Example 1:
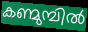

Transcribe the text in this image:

കണ്മുമ്പിൽ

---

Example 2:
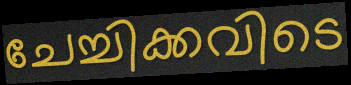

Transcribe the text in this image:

ചേച്ചിക്കവിടെ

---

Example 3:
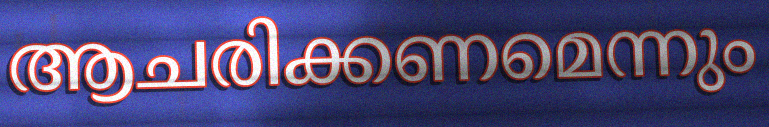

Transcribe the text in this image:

ആചരിക്കണമെന്നും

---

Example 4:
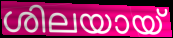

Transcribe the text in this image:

ശിലയായ്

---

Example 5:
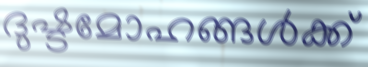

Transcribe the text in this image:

ദുഷ്ടമോഹങ്ങൾക്ക്